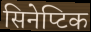
सिनेप्टिक